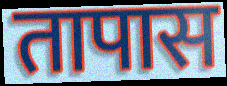
तापास